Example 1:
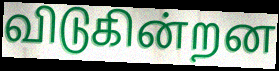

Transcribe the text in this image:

விடுகின்றன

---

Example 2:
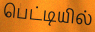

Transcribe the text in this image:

பெட்டியில்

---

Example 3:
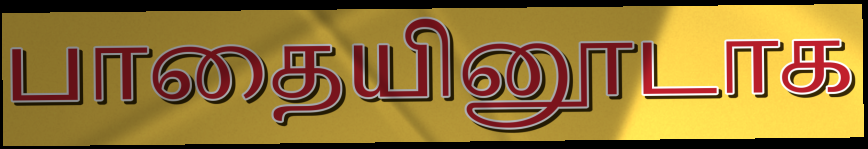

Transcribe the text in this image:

பாதையினூடாக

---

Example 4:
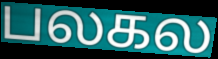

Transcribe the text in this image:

பலகல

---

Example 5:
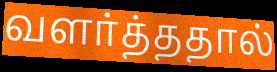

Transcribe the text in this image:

வளர்த்ததால்